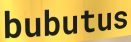
bubutus